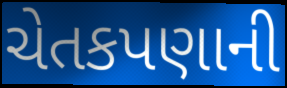
ચેતકપણાની